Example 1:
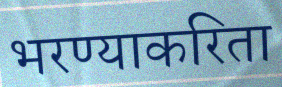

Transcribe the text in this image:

भरण्याकरिता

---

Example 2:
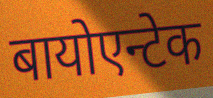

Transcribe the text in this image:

बायोएन्टेक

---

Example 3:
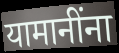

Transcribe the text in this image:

यामानींना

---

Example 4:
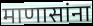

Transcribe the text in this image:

माणासांना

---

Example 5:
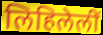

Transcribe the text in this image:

लिहिलेलीं